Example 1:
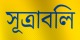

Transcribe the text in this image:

সূত্রাবলি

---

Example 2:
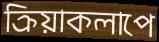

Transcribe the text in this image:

ক্রিয়াকলাপে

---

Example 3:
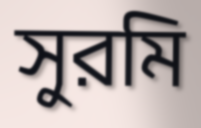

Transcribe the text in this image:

সুরমি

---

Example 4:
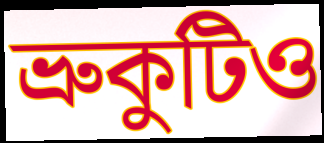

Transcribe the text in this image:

ভ্রুকুটিও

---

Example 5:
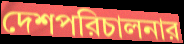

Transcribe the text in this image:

দেশপরিচালনার